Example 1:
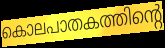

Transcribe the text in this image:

കൊലപാതകത്തിന്റെ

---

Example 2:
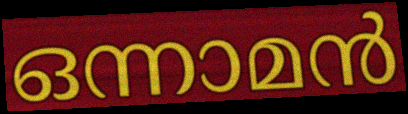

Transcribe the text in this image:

ഒന്നാമൻ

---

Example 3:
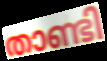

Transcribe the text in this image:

താണ്ടി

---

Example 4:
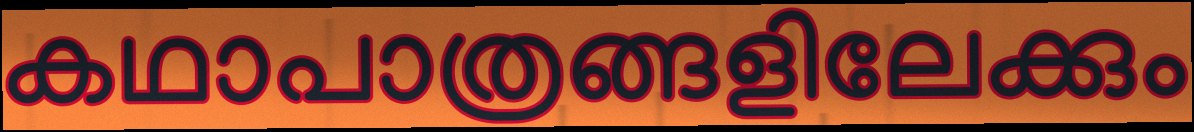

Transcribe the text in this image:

കഥാപാത്രങ്ങളിലേക്കും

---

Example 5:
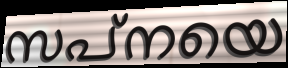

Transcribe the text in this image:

സപ്‌നയെ